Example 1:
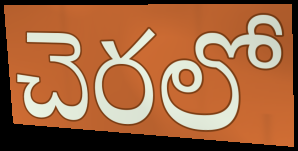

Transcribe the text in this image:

చెరలో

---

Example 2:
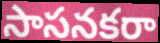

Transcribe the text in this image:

సాసనకరా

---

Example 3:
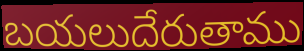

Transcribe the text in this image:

బయలుదేరుతాము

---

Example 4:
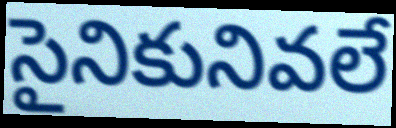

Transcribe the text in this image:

సైనికునివలే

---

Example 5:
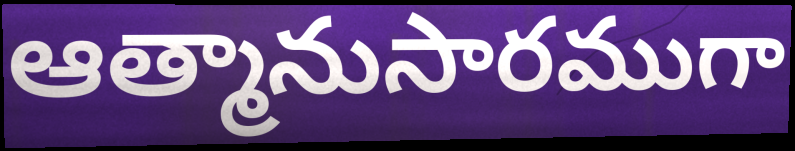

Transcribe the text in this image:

ఆత్మానుసారముగా